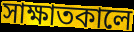
সাক্ষাতকালে